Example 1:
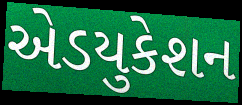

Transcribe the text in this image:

એડયુકેશન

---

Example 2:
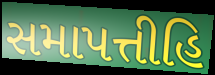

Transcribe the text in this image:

સમાપત્તીહિ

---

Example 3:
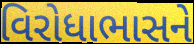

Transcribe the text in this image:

વિરોધાભાસને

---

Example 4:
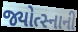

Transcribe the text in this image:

જ્યોત્સ્નાની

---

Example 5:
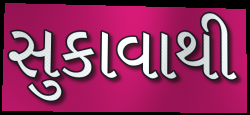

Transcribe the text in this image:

સુકાવાથી